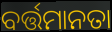
ବର୍ତ୍ତମାନତା